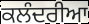
ਕਲੰਦਰੀਆ